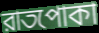
রাতপোকা